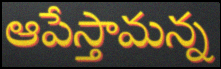
ఆపేస్తామన్న